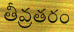
తీవ్రతరం